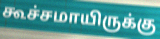
கூச்சமாயிருக்கு